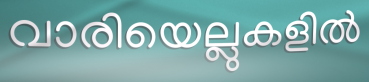
വാരിയെല്ലുകളിൽ